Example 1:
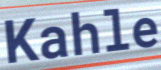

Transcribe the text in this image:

Kahle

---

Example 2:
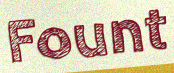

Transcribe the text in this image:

Fount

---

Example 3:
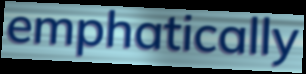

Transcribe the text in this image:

emphatically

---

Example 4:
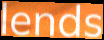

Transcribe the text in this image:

lends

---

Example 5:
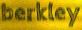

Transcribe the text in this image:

berkley